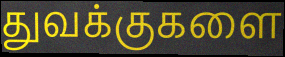
துவக்குகளை